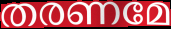
തരണമേ